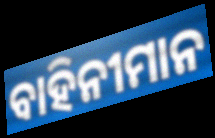
ବାହିନୀମାନ